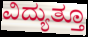
ವಿದ್ಯುತ್ತೂ